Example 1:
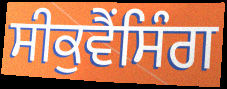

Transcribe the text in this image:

ਸੀਕੁਵੈਂਸਿੰਗ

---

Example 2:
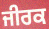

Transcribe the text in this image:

ਜੀਰਕ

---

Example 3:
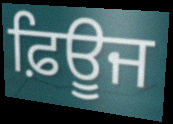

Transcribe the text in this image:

ਫ਼ਿਊਜ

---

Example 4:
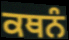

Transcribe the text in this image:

ਕਥਨੰ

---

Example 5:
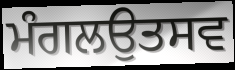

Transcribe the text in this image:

ਮੰਗਲਉਤਸਵ